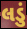
લડું